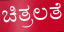
ಚಿತ್ರಲತೆ